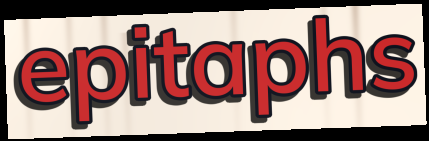
epitaphs